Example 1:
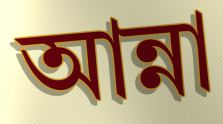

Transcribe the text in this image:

আন্না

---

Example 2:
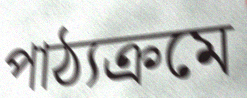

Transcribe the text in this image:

পাঠ্যক্রমে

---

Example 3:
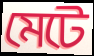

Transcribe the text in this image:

মেটে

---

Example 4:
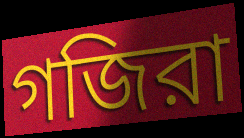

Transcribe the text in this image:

গজিরা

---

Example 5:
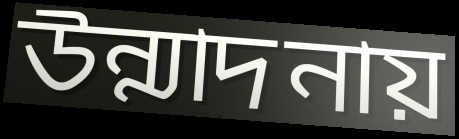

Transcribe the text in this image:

উন্মাদনায়